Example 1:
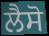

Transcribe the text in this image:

ਲੈਸੋ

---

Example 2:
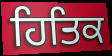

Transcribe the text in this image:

ਹਿਤਿਕ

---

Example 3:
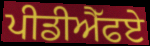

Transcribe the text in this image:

ਪੀਡੀਐੱਫਏ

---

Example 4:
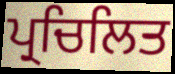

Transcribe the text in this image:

ਪ੍ਰਚਿਲਿਤ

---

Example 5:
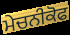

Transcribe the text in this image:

ਮੇਚਨੀਕੋਫ